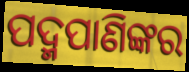
ପଦ୍ମପାଣିଙ୍କର